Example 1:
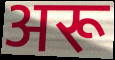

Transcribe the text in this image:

अरू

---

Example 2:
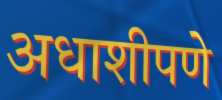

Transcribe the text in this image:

अधाशीपणे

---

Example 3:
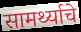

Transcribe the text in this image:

सामर्थ्याचे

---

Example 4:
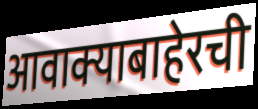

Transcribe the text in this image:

आवाक्याबाहेरची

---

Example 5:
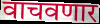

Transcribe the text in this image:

वाचवणार